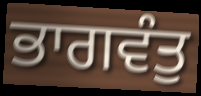
ਭਾਗਵੰਤੁ